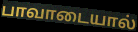
பாவாடையால்